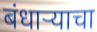
बंधार्‍याचा